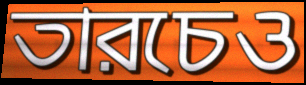
তারচেও